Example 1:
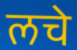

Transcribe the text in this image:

लचे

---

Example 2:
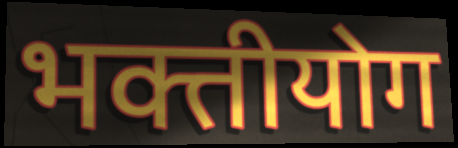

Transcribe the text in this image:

भक्तीयोग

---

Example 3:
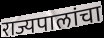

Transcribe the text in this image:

राज्यपालांचा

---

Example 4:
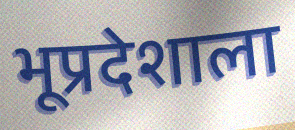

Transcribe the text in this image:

भूप्रदेशाला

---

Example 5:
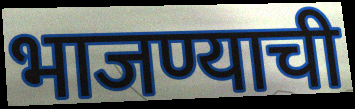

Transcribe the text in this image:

भाजण्याची